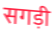
सगड़ी